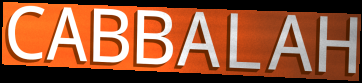
CABBALAH